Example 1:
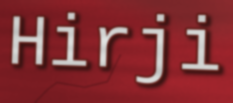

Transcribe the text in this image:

Hirji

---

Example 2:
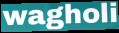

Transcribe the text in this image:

wagholi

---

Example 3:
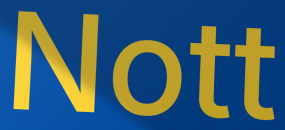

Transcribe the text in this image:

Nott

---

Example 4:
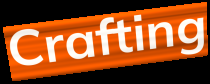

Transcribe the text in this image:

Crafting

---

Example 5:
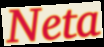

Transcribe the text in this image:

Neta